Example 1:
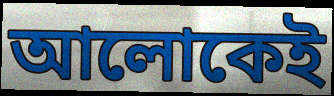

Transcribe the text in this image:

আলোকেই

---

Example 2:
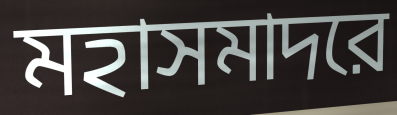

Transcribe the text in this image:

মহাসমাদরে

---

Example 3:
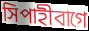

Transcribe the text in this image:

সিপাহীবাগে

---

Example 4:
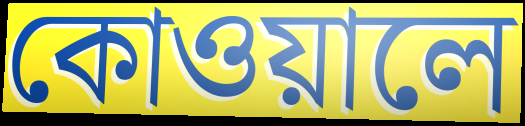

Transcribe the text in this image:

কোওয়ালে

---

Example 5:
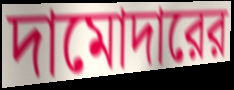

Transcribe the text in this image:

দামোদারের